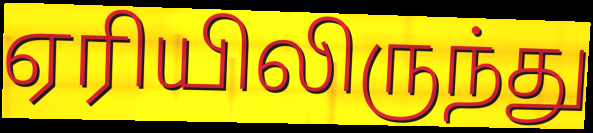
ஏரியிலிருந்து